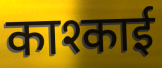
काश्काई